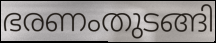
ഭരണംതുടങ്ങി